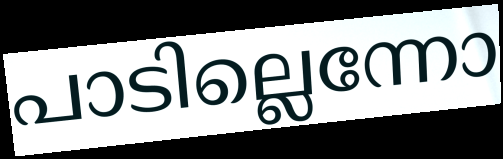
പാടില്ലെന്നോ